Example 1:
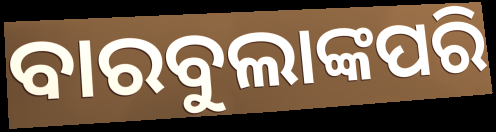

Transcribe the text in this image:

ବାରବୁଲାଙ୍କପରି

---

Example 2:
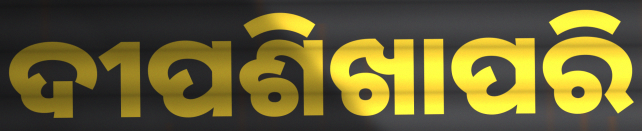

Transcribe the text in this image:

ଦୀପଶିଖାପରି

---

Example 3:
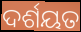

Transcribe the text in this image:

ଦର୍ଶୟତ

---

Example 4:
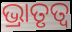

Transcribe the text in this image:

ଭ୍ରାତୃତ୍ଵ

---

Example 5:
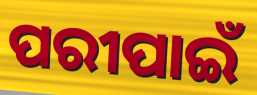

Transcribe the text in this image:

ପରୀପାଇଁ